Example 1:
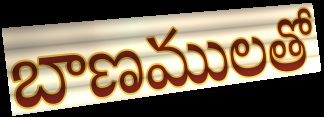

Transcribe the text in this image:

బాణములతో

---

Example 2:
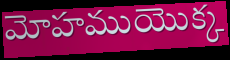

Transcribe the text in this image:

మోహముయొక్క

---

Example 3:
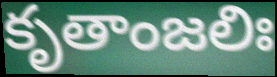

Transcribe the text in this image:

కృతాంజలిః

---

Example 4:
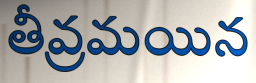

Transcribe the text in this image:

తీవ్రమయిన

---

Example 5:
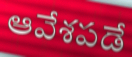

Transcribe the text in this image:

ఆవేశపడే